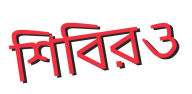
শিবিরও